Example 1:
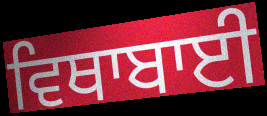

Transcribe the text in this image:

ਵਿਥਾਬਾਈ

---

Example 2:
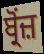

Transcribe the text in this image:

ਬ੍ਰੋਂਜ਼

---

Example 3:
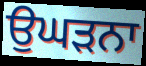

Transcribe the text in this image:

ਉਘੜਨਾ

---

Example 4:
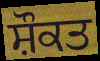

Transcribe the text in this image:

ਸ਼ੌਕਤ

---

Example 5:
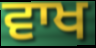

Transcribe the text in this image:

ਵਾਖ